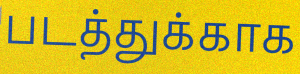
படத்துக்காக